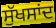
ਸੁੱਖਸਾਂਦ